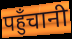
पहुँचानी